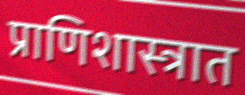
प्राणिशास्त्रात